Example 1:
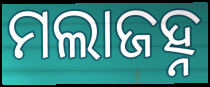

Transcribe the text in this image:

ମଲାଜହ୍ନ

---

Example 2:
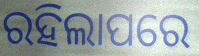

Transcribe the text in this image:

ରହିଲାପରେ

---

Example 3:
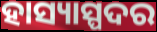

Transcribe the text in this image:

ହାସ୍ୟାସ୍ପଦର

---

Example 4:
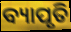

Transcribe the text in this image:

ବ୍ୟାପୃତି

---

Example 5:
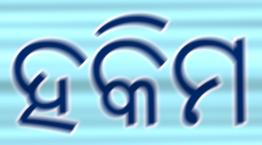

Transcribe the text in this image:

ହକିମ